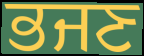
ਭਜਣ